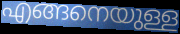
എങ്ങനെയുള്ള